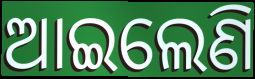
ଆଇଲେଣି